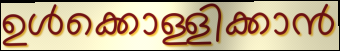
ഉൾക്കൊള്ളിക്കാൻ